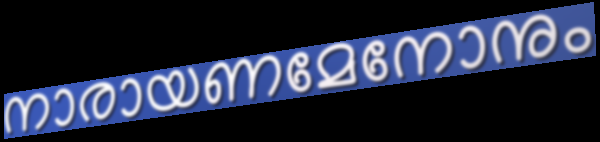
നാരായണമേനോനും